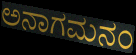
ಅನಾಗಮನಂ